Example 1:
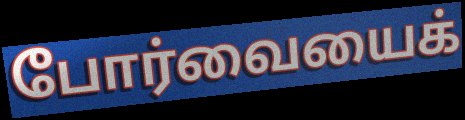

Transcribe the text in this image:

போர்வையைக்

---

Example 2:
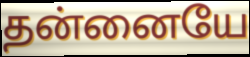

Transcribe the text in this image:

தன்னையே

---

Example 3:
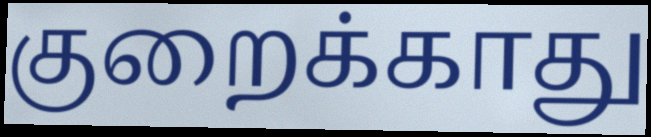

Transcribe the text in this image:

குறைக்காது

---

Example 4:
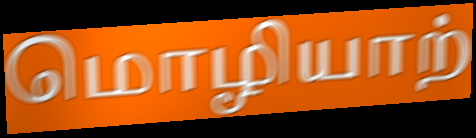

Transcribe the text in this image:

மொழியாற்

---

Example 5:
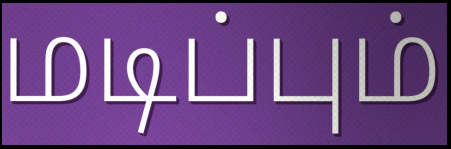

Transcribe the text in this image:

மடிப்பும்